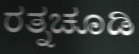
ರತ್ನಚೂಡಿ